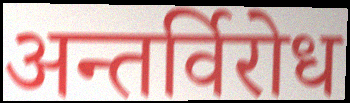
अन्तर्विरोध